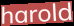
harold